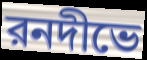
রনদীভে